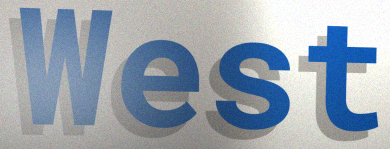
West